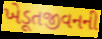
ખેડૂતજીવનની